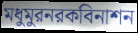
মধুমুরনরকবিনাশন